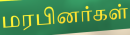
மரபினர்கள்